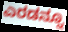
ಎರಡನ್ನೂ